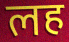
लह